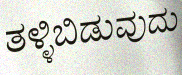
ತಳ್ಳಿಬಿಡುವುದು